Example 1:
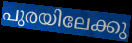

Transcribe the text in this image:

പുരയിലേക്കു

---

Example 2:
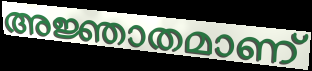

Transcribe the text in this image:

അജ്ഞാതമാണ്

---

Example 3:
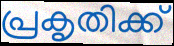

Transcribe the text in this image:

പ്രകൃതിക്ക്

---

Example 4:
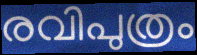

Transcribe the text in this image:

രവിപുത്രം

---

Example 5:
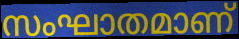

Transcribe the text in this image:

സംഘാതമാണ്